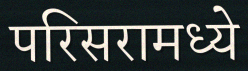
परिसरामध्ये